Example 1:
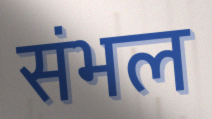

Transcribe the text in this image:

संभल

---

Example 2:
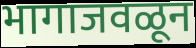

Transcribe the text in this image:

भागाजवळून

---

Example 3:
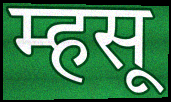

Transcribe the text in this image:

म्हसू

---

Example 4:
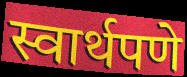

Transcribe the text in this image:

स्वार्थपणे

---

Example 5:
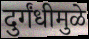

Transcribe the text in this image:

दुर्गंधीमुळे